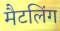
मैटलिंग